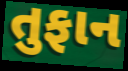
તુફાન